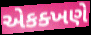
એકક્ખણે